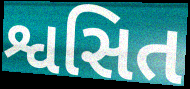
શ્વસિત